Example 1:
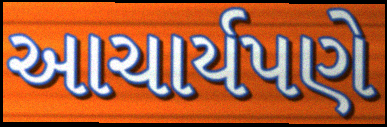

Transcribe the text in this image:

આચાર્યપણે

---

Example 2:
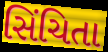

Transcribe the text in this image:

સિંચિતા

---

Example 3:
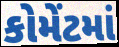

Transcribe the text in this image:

કોમેંટમાં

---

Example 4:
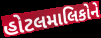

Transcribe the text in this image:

હોટલમાલિકોને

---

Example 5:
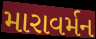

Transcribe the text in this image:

મારાવર્મન